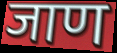
जाण